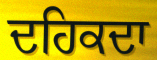
ਦਹਿਕਦਾ